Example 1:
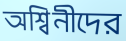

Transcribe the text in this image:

অশ্বিনীদের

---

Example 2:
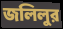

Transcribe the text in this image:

জলিলুর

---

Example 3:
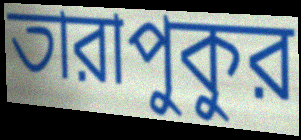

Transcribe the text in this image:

তারাপুকুর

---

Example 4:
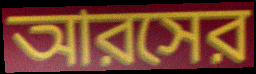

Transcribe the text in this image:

আরসের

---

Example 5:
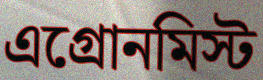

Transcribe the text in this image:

এগ্রোনমিস্ট